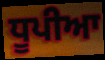
ਧੂਪੀਆ